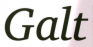
Galt